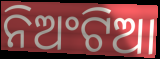
ନିଅଂଟିଆ